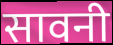
सावनी